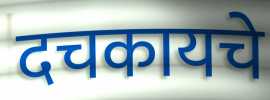
दचकायचे